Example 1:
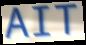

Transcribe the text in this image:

AIT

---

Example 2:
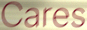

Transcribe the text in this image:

Cares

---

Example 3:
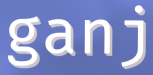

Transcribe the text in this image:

ganj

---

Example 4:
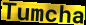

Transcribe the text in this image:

Tumcha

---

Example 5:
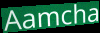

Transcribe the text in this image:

Aamcha